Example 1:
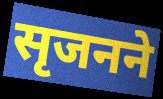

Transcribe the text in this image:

सृजनने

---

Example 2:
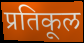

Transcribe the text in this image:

प्रतिकूल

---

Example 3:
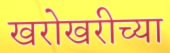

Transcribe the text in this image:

खरोखरीच्या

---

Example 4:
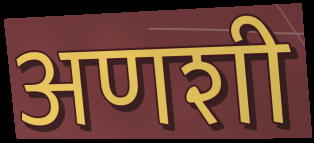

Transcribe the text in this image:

अणशी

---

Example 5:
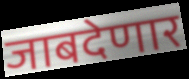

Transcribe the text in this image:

जाबदेणार